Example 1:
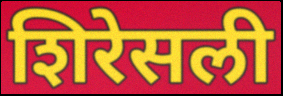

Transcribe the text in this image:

शिरेसली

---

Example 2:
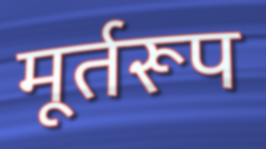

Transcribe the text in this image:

मूर्तरूप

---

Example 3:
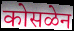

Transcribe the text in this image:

कोसळेन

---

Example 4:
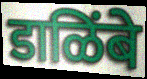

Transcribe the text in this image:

डाळिंबे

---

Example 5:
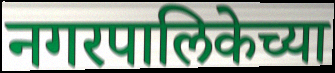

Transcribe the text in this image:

नगरपालिकेच्या